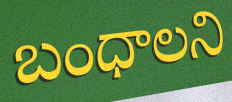
బంధాలని